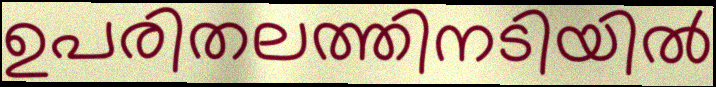
ഉപരിതലത്തിനടിയിൽ